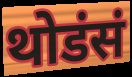
थोडंसं